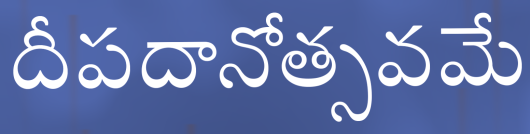
దీపదానోత్సవమే